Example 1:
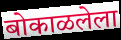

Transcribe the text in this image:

बोकाळलेला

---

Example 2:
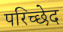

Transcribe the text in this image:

परिच्छेद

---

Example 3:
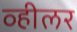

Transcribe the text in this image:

व्हीलर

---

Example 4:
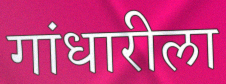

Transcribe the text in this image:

गांधारीला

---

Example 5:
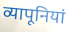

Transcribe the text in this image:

व्यापूनियां